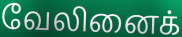
வேலினைக்